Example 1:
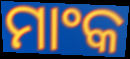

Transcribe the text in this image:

ମାଂକ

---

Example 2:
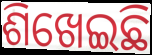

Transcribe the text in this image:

ଶିଖେଇଛି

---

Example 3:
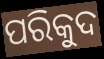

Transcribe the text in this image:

ପରିକୁଦ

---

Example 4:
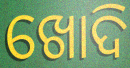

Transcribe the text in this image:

ଖୋଦି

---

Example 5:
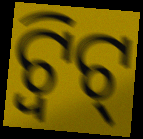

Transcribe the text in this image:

ଟ୍ୱିଟ୍